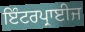
ਇੰਟਰਪ੍ਰਾਈਜ